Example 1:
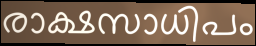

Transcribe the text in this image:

രാക്ഷസാധിപം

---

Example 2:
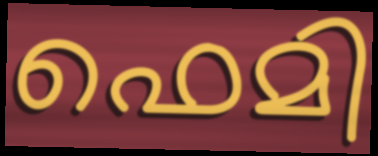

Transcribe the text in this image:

ഫെമി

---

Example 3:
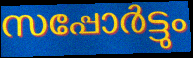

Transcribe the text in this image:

സപ്പോർട്ടും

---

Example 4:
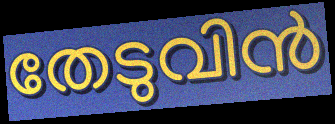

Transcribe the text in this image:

തേടുവിൻ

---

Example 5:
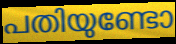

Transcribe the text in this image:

പതിയുണ്ടോ